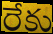
రేకు